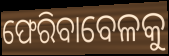
ଫେରିବାବେଳକୁ